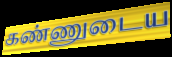
கண்ணுடைய